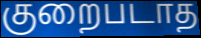
குறைபடாத